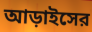
আড়াইসের